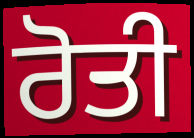
ਰੋਤੀ